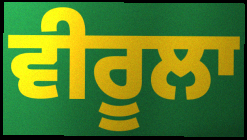
ਵੀਰੂਲਾ